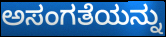
ಅಸಂಗತೆಯನ್ನು